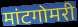
मांटगोमरी